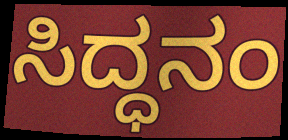
ಸಿದ್ಧನಂ